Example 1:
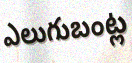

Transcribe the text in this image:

ఎలుగుబంట్ల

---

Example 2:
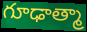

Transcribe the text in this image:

గూఢాత్మా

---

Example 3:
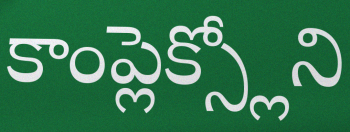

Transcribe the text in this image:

కాంప్లెక్స్లోని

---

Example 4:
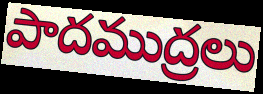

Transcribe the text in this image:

పాదముద్రలు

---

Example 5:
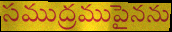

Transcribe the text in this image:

సముద్రముపైనను